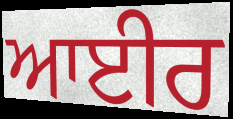
ਆਈਰ